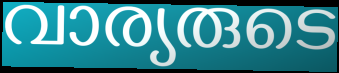
വാര്യരുടെ